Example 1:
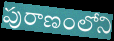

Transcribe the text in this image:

పురాణంలోని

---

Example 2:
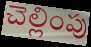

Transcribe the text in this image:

చెల్లింపు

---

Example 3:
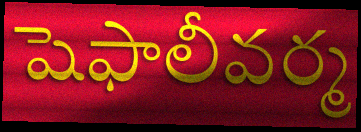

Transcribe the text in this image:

షెఫాలీవర్మ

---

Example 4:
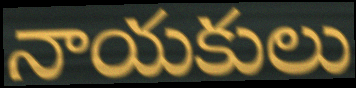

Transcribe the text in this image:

నాయకులు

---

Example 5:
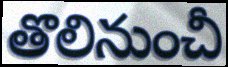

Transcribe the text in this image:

తొలినుంచీ